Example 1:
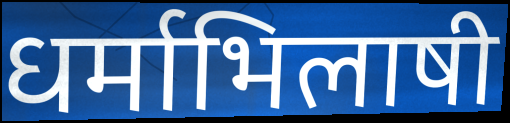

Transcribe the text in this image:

धर्माभिलाषी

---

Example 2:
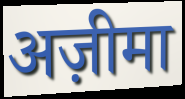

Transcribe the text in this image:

अज़ीमा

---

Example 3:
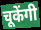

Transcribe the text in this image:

चूकेंगी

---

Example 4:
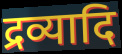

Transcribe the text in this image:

द्रव्यादि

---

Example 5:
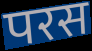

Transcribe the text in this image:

परस